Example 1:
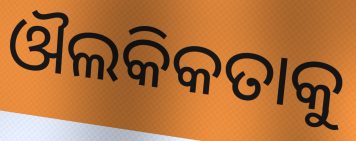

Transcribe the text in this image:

ଔଲକିକତାକୁ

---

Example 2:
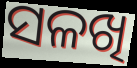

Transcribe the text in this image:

ସଳଖି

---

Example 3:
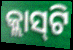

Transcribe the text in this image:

କ୍ଲାସ୍‍ଟି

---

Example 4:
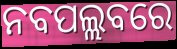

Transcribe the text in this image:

ନବପଲ୍ଲବରେ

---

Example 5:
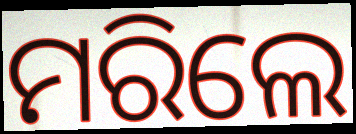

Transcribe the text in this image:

ମରିଲେ